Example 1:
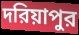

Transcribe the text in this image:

দরিয়াপুর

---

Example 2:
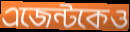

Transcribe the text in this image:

এজেন্টকেও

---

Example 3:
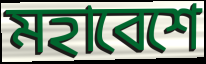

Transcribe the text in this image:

মহাবেশে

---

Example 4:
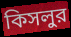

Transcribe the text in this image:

কিসলুর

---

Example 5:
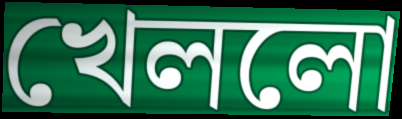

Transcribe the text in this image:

খেললো